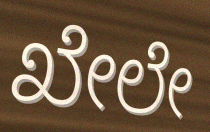
ಖೇಲೇ